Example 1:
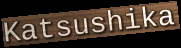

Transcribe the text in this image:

Katsushika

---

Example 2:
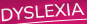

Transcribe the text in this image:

DYSLEXIA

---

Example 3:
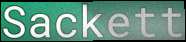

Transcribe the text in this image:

Sackett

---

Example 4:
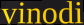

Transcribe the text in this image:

vinodi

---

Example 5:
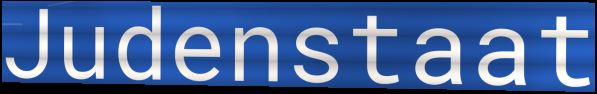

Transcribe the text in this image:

Judenstaat